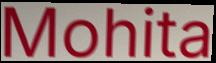
Mohita